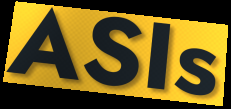
ASIs